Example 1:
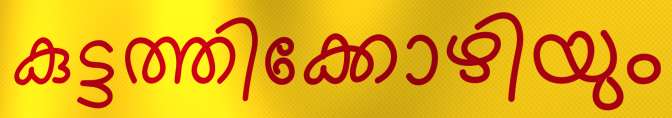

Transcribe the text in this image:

കുട്ടത്തിക്കോഴിയും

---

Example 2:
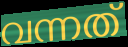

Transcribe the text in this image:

വന്നത്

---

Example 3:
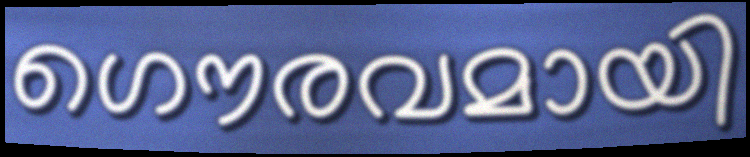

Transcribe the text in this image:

ഗൌരവമായി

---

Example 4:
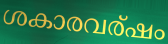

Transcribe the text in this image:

ശകാരവര്ഷം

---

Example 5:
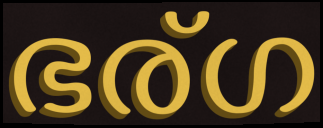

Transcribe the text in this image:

ഭര്ഗ